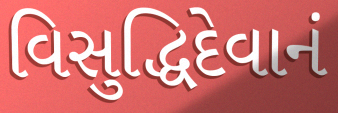
વિસુદ્ધિદેવાનં